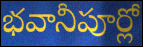
భవానీపూర్లో